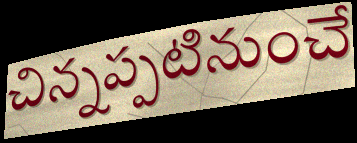
చిన్నప్పటినుంచే